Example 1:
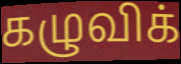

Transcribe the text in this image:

கழுவிக்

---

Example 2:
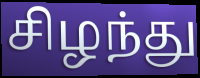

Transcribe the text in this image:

சிழந்து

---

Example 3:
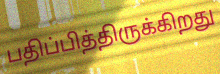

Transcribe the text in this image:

பதிப்பித்திருக்கிறது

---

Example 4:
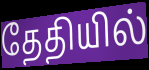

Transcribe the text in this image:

தேதியில்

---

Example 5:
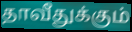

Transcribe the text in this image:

தாவீதுக்கும்